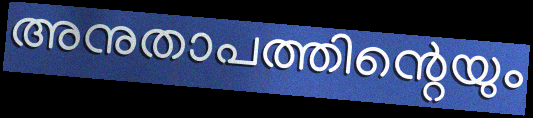
അനുതാപത്തിന്റെയും